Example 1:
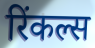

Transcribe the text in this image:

रिंकल्स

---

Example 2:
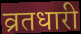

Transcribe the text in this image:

व्रतधारी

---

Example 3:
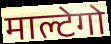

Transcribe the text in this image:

माल्टेगो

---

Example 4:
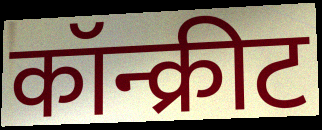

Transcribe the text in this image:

कॉन्क्रीट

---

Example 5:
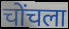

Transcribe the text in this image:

चोंचला